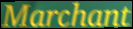
Marchant